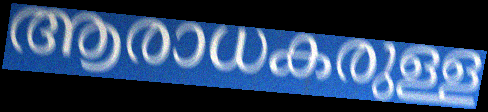
ആരാധകരുള്ള